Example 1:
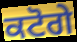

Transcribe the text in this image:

ਕਟੋਗੇ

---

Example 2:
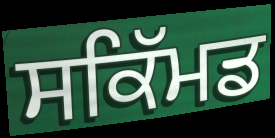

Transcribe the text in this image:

ਸਕਿੱਮਡ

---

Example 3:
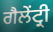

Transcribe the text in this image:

ਗੈਲੇਂਟ੍ਰੀ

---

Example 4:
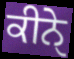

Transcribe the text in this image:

ਕੀਨੇੑ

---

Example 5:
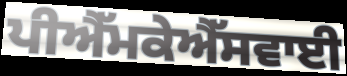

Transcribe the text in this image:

ਪੀਐੱਮਕੇਐੱਸਵਾਈ